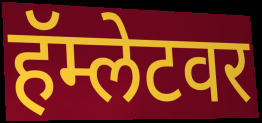
हॅम्लेटवर